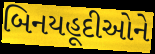
બિનયહૂદીઓને